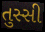
તુસ્સી